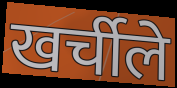
खर्चीले